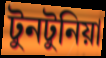
টুনটুনিয়া